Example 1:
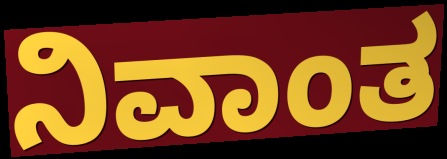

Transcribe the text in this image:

ನಿವಾಂತ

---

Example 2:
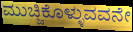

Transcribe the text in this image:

ಮುಚ್ಚಿಕೊಳ್ಳುವವನೇ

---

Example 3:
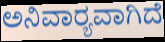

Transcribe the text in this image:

ಅನಿವಾರ‍್ಯವಾಗಿದೆ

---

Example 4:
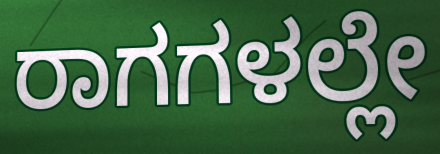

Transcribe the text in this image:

ರಾಗಗಳಲ್ಲೇ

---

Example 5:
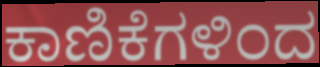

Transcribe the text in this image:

ಕಾಣಿಕೆಗಳಿಂದ